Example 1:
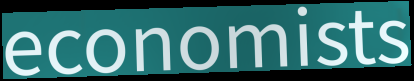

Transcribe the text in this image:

economists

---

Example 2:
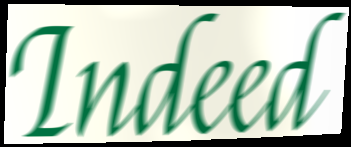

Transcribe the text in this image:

Indeed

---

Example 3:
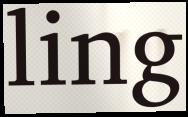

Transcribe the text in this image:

ling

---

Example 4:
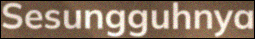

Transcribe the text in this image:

Sesungguhnya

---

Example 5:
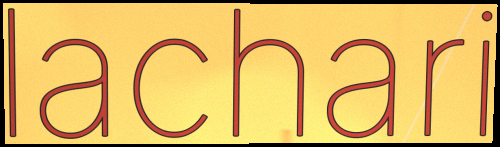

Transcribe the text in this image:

lachari